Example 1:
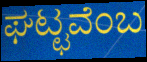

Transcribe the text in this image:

ಘಟ್ಟವೆಂಬ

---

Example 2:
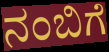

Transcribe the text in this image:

ನಂಬಿಗೆ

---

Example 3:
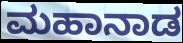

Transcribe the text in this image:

ಮಹಾನಾಡ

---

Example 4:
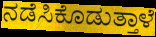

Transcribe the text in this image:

ನಡೆಸಿಕೊಡುತ್ತಾಳೆ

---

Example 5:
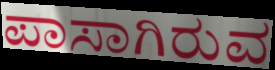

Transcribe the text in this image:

ಪಾಸಾಗಿರುವ